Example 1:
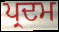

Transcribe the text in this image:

ਪ੍ਰਦਮ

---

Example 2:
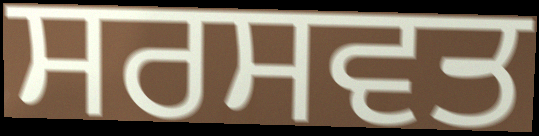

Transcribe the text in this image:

ਸਰਸਵਤ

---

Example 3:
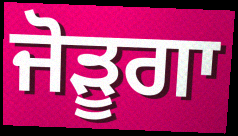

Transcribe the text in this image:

ਜੋੜੂਗਾ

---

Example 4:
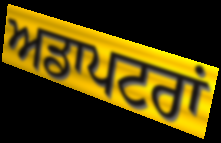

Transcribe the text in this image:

ਅਡਾਪਟਰਾਂ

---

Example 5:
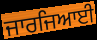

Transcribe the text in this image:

ਜਾਰਜਿਆਈ